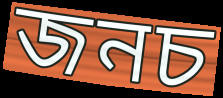
জনচ